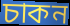
চাকন